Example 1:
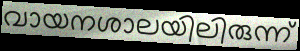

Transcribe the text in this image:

വായനശാലയിലിരുന്ന്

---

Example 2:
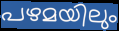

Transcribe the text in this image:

പഴമയിലും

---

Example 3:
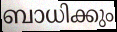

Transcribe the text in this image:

ബാധിക്കും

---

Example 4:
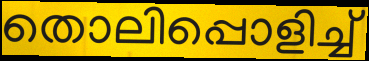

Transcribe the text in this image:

തൊലിപ്പൊളിച്ച്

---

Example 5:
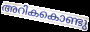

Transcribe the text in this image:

അറികകൊണ്ടു